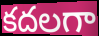
కదలగా